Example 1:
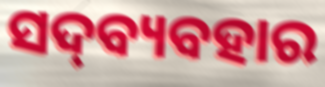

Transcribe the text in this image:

ସଦ୍‍ବ୍ୟବହାର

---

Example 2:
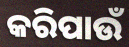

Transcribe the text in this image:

କରିପାଉଁ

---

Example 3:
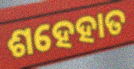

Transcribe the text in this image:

ଶହେହାତ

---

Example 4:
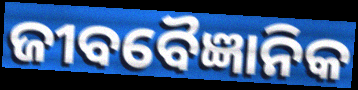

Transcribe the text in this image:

ଜୀବବୈଜ୍ଞାନିକ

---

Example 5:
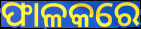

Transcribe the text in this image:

ଫାଳକରେ